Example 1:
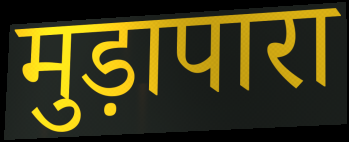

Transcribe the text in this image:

मुड़ापारा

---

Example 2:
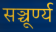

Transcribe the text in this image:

सञ्चूर्ण्य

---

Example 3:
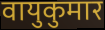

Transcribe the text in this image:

वायुकुमार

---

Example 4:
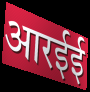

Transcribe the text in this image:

आरईई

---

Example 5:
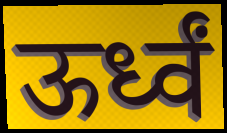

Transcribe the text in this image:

ऊर्ध्वं